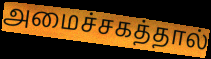
அமைச்சகத்தால்